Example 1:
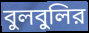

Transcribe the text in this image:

বুলবুলির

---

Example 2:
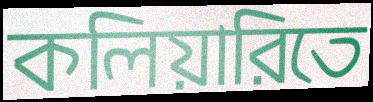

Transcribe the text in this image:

কলিয়ারিতে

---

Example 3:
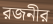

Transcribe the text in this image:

রজনীর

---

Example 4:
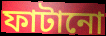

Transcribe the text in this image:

ফাটানো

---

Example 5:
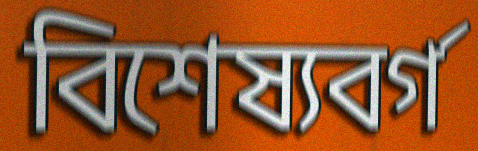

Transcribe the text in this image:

বিশেষ্যবর্গ